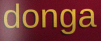
donga